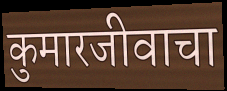
कुमारजीवाचा